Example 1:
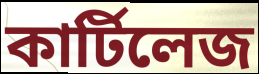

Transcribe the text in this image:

কার্টিলেজ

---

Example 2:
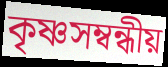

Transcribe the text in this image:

কৃষ্ণসম্বন্ধীয়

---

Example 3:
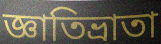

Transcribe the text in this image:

জ্ঞাতিভ্রাতা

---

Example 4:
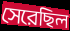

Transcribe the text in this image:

সেরেছিল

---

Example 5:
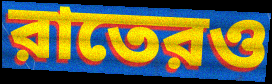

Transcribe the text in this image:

রাতেরও